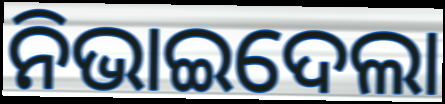
ନିଭାଇଦେଲା